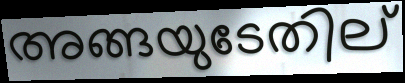
അങ്ങയുടേതില്